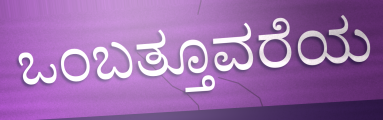
ಒಂಬತ್ತೂವರೆಯ